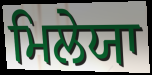
ਮਿਲੇਯਾ